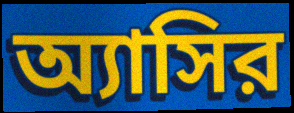
অ্যাসির